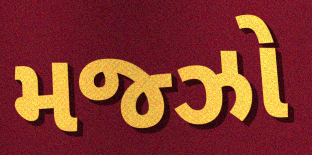
મજ્ઝો